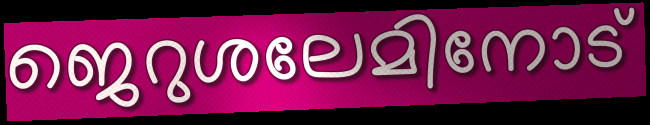
ജെറുശലേമിനോട്